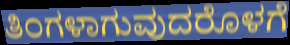
ತಿಂಗಳಾಗುವುದರೊಳಗೆ